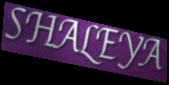
SHALEYA